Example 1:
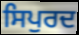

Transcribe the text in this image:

ਸਿਪੁਰਦ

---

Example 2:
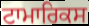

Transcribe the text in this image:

ਟਾਮਾਰਿਕਸ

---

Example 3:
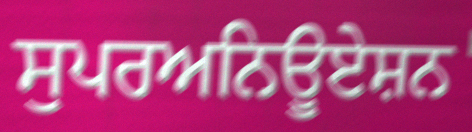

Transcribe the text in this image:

ਸੁਪਰਅਨਿਊਏਸ਼ਨ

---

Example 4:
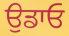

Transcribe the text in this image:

ਉਡਾਓ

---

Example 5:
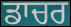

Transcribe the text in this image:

ਡਾਚਰ